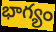
భాగ్యం